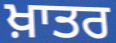
ਖ਼ਾਤਰ